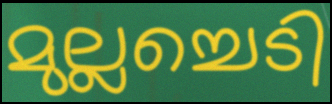
മുല്ലച്ചെടി